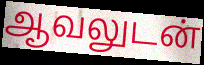
ஆவலுடன்